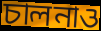
চালনাও